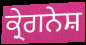
ਕ੍ਰੇਗਨੇਸ਼